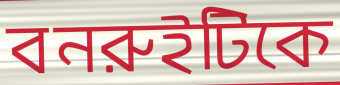
বনরুইটিকে